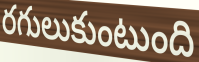
రగులుకుంటుంది